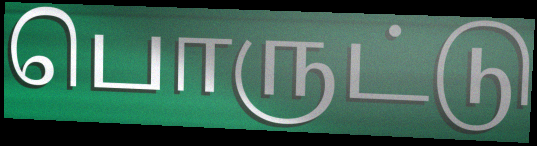
பொருட்டு